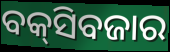
ବକ୍‌ସିବଜାର